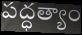
పద్ధత్యాం